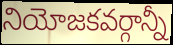
నియోజకవర్గాన్నీ